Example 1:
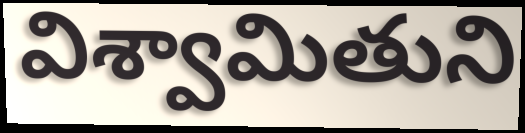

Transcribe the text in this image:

విశ్వామితుని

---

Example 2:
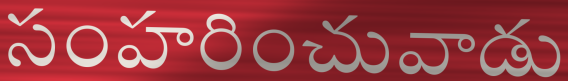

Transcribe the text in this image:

సంహరించువాడు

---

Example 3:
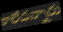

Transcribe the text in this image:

కాలేదన్నారు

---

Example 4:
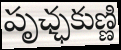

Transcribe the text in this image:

పృఛ్ఛకుణ్ణి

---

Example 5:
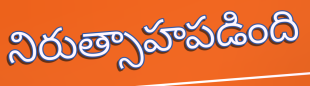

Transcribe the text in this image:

నిరుత్సాహపడింది